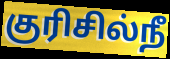
குரிசில்நீ